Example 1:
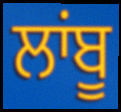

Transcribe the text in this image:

ਲਾਂਬੂ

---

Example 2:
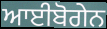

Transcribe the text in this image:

ਆਈਬੋਗੇਨ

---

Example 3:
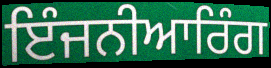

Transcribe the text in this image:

ਇੰਜਨੀਆਰਿੰਗ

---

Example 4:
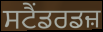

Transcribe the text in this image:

ਸਟੈਂਡਰਡਜ਼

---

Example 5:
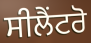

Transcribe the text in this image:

ਸੀਲੈਂਟਰੋ